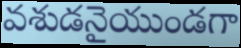
వశుడనైయుండగా